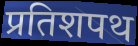
प्रतिशपथ